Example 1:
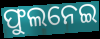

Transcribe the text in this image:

ଫୁଲନେଇ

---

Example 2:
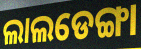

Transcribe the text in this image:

ଲାଲଡେଙ୍ଗା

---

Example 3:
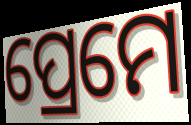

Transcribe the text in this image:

ପ୍ରେମେ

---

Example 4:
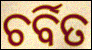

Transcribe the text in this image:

ଚର୍ବିତ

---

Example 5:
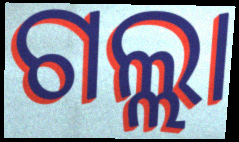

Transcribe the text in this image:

ଗଲ୍ଲା